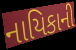
નાયિકાની